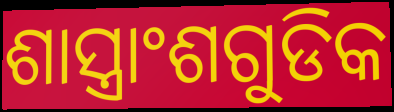
ଶାସ୍ତ୍ରାଂଶଗୁଡିକ